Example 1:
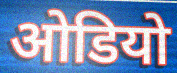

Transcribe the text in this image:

ओडियो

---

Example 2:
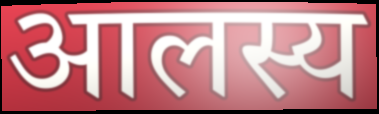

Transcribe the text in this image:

आलस्य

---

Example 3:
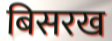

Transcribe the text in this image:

बिसरख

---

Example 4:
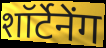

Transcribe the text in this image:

शॉर्टेनेंग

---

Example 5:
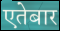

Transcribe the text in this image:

एतेबार